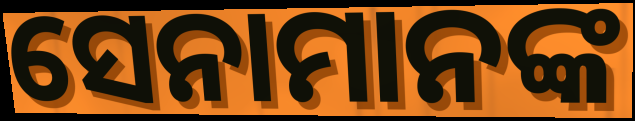
ସେନାମାନଙ୍କ